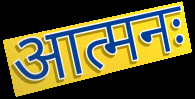
आत्मनः